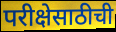
परीक्षेसाठीची